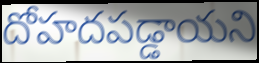
దోహదపడ్డాయని